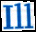
Ill